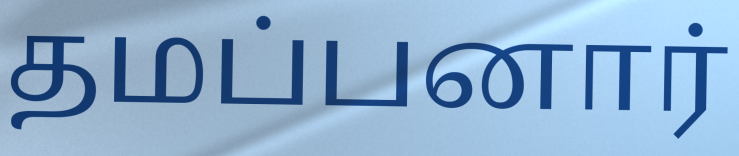
தமப்பனார்